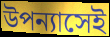
উপন্যাসেই